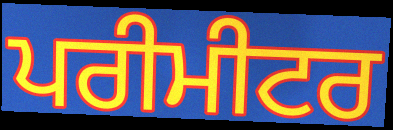
ਪਰੀਮੀਟਰ